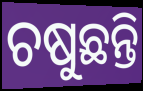
ଚଷୁଛନ୍ତି